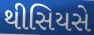
થીસિયસે